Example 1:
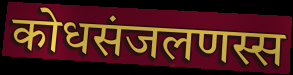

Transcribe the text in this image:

कोधसंजलणस्स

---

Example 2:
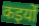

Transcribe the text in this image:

कइयों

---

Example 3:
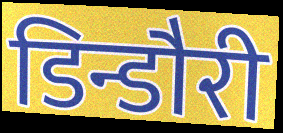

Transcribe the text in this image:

डिन्डौरी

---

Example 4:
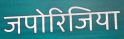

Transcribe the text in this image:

जपोरिजिया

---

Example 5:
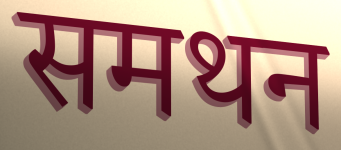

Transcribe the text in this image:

समथन